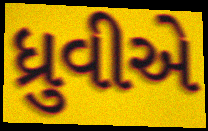
ધ્રુવીએ